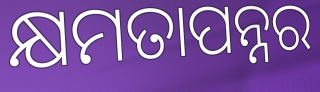
କ୍ଷମତାପନ୍ନର